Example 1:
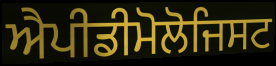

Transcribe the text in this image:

ਐਪੀਡੀਮੋਲੋਜਿਸਟ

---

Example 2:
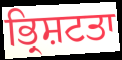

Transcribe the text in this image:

ਭ੍ਰਿਸ਼ਟਤਾ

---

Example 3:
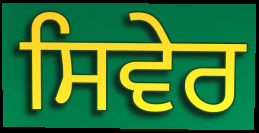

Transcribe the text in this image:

ਸਿਵੇਰ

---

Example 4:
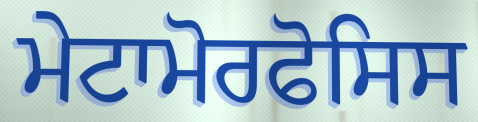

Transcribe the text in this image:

ਮੇਟਾਮੋਰਫੋਸਿਸ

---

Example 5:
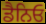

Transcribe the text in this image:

ਡੈਨਿਓ